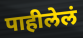
पाहीलेलं